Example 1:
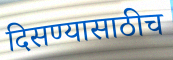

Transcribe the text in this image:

दिसण्यासाठीच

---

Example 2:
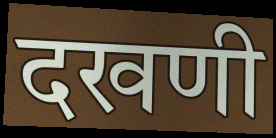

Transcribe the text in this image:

दखणी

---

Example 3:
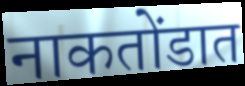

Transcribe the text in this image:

नाकतोंडात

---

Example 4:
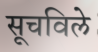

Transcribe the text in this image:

सूचविले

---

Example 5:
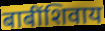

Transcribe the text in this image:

बाबींशिवाय